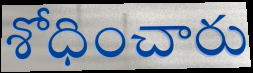
శోధించారు